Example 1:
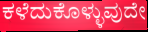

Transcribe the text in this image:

ಕಳೆದುಕೊಳ್ಳುವುದೇ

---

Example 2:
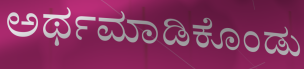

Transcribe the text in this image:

ಅರ್ಥಮಾಡಿಕೊಂಡು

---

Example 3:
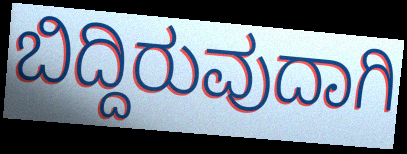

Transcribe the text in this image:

ಬಿದ್ದಿರುವುದಾಗಿ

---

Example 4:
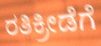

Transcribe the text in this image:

ರತಿಕ್ರೀಡೆಗೆ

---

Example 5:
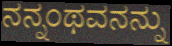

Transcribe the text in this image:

ನನ್ನಂಥವನನ್ನು